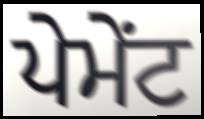
ਪੇਮੇਂਟ